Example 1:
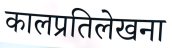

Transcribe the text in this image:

कालप्रतिलेखना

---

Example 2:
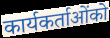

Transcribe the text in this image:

कार्यकर्ताओंको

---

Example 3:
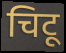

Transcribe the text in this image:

चिटू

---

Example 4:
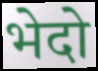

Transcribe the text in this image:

भेदो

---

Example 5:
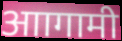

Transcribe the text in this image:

आागामी